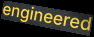
engineered